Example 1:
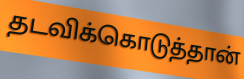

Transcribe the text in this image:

தடவிக்கொடுத்தான்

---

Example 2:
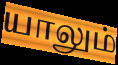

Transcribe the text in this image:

யாலும்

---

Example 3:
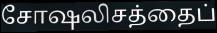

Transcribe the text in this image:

சோஷலிசத்தைப்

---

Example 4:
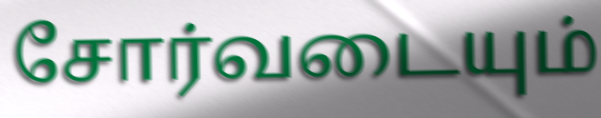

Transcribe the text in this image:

சோர்வடையும்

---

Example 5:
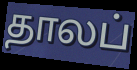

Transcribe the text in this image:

தாலப்